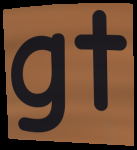
gt